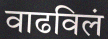
वाढविलं